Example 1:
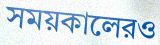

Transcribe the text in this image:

সময়কালেরও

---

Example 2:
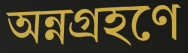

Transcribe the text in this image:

অন্নগ্রহণে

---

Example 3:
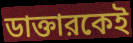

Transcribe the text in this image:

ডাক্তারকেই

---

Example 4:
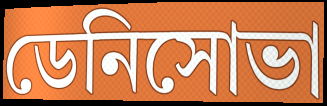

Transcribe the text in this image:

ডেনিসোভা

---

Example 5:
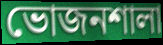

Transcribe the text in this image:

ভোজনশালা